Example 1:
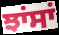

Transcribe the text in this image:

ਝਾਂਸਾਂ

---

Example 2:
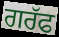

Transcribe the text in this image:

ਗਰੱਫ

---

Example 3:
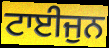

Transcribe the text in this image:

ਟਾਈਜੁਨ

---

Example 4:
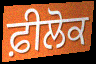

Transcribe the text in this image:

ਫ਼ੀਲੋਕ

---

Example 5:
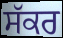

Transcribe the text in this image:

ਸੱਕਰ